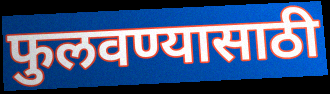
फुलवण्यासाठी